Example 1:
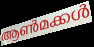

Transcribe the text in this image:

ആൺമക്കൾ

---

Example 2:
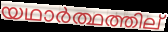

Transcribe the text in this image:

യഥാർത്ഥത്തില്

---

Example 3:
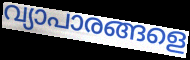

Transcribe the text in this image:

വ്യാപാരങ്ങളെ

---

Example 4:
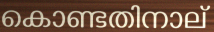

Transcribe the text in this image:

കൊണ്ടതിനാല്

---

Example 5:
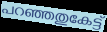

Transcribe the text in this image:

പറഞ്ഞതുകേട്ട്